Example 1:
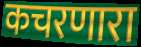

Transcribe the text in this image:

कचरणारा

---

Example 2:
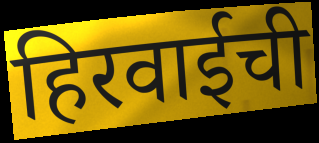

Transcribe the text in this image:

हिरवाईची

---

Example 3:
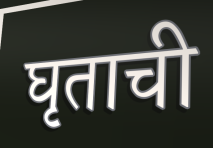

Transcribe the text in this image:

घृताची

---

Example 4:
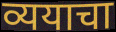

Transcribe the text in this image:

व्ययाचा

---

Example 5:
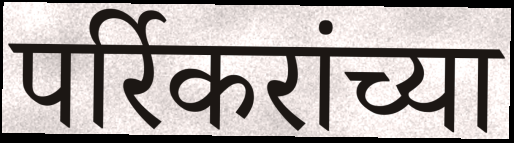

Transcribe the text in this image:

पर्रिकरांच्या